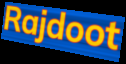
Rajdoot